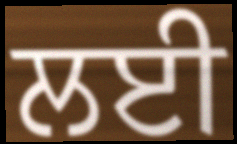
ਲਈ